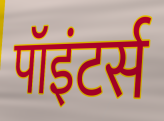
पॉइंटर्स